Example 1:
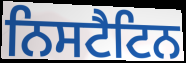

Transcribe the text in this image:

ਨਿਸਟੈਟਿਨ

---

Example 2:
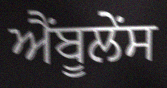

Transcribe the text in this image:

ਐਂਬੂਲੇਂਸ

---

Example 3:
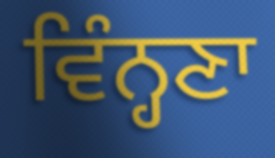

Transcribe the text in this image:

ਵਿੰਨ੍ਹਣਾ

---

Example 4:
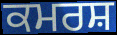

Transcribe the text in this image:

ਕਮਰਸ਼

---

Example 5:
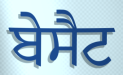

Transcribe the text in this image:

ਬੇਸੈਟ